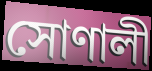
সোণালী